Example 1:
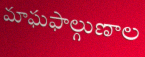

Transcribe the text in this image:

మాఘఫాల్గుణాల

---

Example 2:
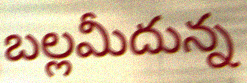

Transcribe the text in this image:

బల్లమీదున్న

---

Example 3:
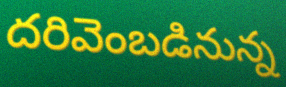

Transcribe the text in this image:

దరివెంబడినున్న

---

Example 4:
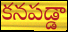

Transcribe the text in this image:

కనపడ్డా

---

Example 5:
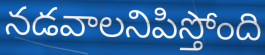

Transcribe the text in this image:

నడవాలనిపిస్తోంది